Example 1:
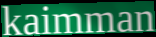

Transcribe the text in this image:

kaimman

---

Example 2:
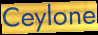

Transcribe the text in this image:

Ceylone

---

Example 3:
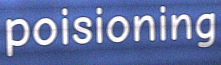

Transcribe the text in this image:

poisioning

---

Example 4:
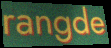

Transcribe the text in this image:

rangde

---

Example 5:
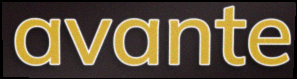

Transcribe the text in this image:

avante